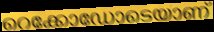
റെക്കോഡോടെയാണ്